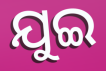
ଯୁଇ